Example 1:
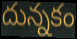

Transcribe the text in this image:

దున్నకం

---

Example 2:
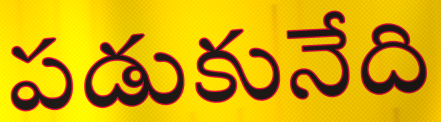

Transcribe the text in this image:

పడుకునేది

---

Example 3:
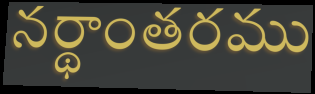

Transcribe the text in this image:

నర్థాంతరము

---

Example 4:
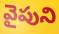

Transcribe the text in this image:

వైపుని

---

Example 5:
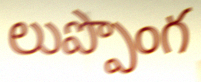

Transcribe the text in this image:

లుప్పొంగ